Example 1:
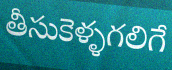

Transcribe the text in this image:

తీసుకెళ్ళగలిగే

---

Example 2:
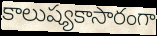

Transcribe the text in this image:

కాలుష్యకాసారంగా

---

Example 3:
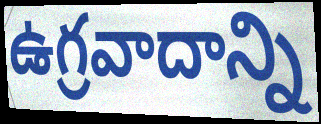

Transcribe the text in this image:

ఉగ్రవాదాన్ని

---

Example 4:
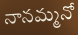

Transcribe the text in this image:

నానమ్మనో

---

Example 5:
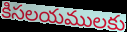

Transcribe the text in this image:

కిసలయములకు